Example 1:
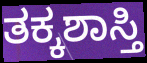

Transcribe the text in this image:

ತಕ್ಕಶಾಸ್ತಿ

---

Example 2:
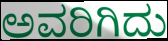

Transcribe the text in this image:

ಅವರಿಗಿದು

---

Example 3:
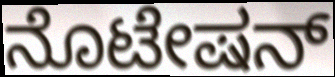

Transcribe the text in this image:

ನೊಟೇಷನ್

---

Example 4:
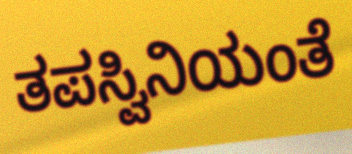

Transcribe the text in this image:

ತಪಸ್ವಿನಿಯಂತೆ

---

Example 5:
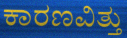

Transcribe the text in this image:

ಕಾರಣವಿತ್ತು